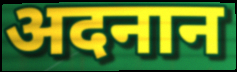
अदनान